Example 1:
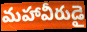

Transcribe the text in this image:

మహావీరుడై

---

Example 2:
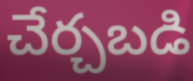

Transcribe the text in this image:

చేర్చబడి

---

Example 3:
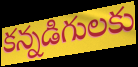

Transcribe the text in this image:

కన్నడిగులకు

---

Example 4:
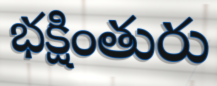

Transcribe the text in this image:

భక్షింతురు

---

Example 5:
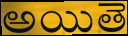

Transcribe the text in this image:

అయితె